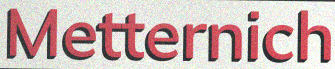
Metternich